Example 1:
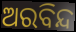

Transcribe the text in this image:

ଅରବିନ୍ଦ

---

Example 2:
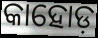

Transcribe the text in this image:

କାହୋଡ଼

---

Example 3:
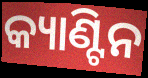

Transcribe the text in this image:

କ୍ୟାଣ୍ଟିନ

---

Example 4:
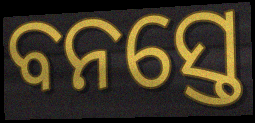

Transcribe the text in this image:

ବନସ୍ତେ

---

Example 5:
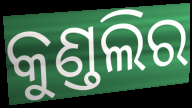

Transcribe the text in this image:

କୁଣ୍ଡଲିର